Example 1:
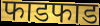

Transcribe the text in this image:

फाडफाड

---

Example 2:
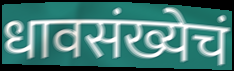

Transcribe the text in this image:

धावसंख्येचं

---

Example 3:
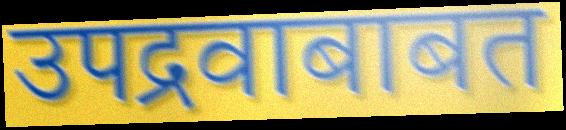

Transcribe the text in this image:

उपद्रवाबाबत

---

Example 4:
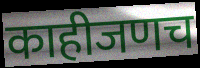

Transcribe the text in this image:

काहीजणच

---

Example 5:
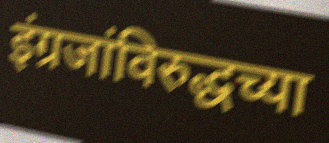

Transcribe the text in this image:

इंग्रजांविरुद्धच्या